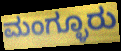
ಮಂಗ್ಳೂರು